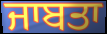
ਜਾਬਤਾ